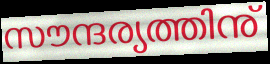
സൗന്ദര്യത്തിനു്